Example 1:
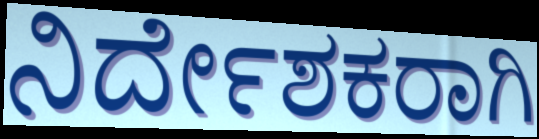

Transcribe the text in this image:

ನಿರ್ದೇಶಕರಾಗಿ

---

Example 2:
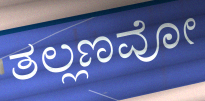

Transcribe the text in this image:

ತಲ್ಲಣವೋ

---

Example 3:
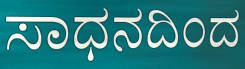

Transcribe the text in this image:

ಸಾಧನದಿಂದ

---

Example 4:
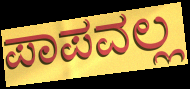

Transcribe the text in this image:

ಪಾಪವಲ್ಲ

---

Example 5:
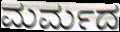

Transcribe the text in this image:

ಮರ್ಮದ